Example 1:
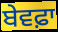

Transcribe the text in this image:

ਬੇਵਫ਼ਾ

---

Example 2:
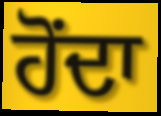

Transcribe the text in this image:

ਹੋਂਦਾ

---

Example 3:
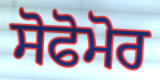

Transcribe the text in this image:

ਸੋਫੋਮੋਰ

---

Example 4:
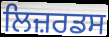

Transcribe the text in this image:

ਲਿਜ਼ਰਡਸ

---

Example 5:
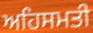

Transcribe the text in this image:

ਅਹਿਸਮਤੀ